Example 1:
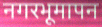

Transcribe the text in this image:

नगरभूमापन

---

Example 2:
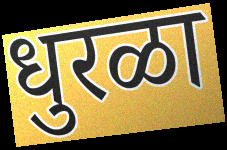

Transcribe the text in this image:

धुरळा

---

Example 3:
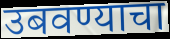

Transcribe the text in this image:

उबवण्याचा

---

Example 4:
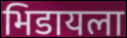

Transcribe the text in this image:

भिडायला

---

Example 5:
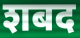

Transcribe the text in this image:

शबद